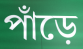
পাঁড়ে